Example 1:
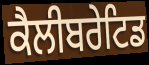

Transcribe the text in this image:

ਕੈਲੀਬਰੇਟਿਡ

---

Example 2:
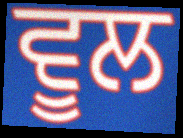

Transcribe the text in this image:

ਵੂਲ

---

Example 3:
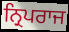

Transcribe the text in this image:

ਨ੍ਰਿਪਰਾਜ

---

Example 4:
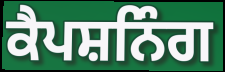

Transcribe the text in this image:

ਕੈਪਸ਼ਨਿੰਗ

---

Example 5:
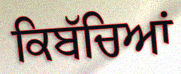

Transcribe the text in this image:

ਕਿਬੱਚਿਆਂ